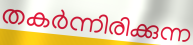
തകർന്നിരിക്കുന്ന